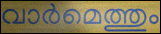
വാർമെത്തും